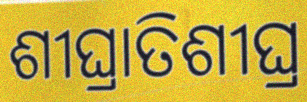
ଶୀଘ୍ରାତିଶୀଘ୍ର